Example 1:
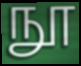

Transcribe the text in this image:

நூ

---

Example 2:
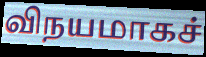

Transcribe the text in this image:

விநயமாகச்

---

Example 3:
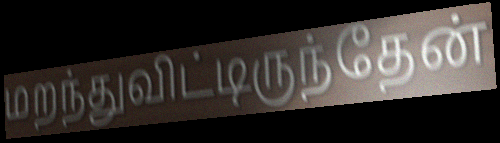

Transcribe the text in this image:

மறந்துவிட்டிருந்தேன்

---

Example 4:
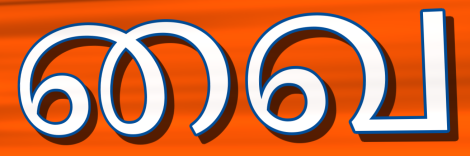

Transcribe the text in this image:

வை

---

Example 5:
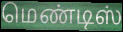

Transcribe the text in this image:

மெண்டிஸ்